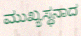
ಮುಖ್ಯಸ್ಥನಾದ